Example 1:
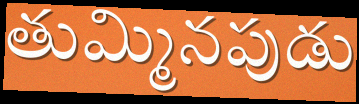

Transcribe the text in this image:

తుమ్మినపుడు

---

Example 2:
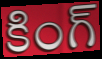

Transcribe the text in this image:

కింగ్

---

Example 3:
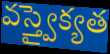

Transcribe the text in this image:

వస్త్వైక్యత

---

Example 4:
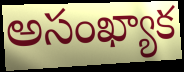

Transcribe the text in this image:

అసంఖ్యాక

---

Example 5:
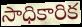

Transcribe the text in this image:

సాధికారిక